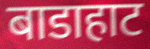
बाडाहाट